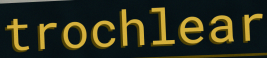
trochlear